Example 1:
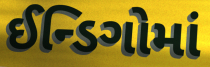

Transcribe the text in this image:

ઈન્ડિગોમાં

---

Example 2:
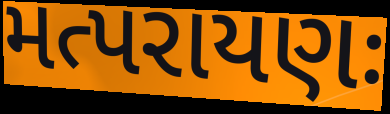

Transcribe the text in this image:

મત્પરાયણઃ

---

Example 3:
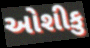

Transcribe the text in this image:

ઓશીકુ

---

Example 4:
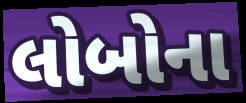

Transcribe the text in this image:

લોબોના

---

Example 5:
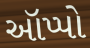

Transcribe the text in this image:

ઑપ્પો